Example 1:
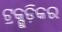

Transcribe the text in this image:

ଟ୍ରକ୍ଗୁଡ଼ିକର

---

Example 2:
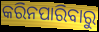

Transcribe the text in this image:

କରିନପାରିବାରୁ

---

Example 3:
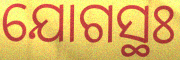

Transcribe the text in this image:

ଯୋଗସ୍ଥଃ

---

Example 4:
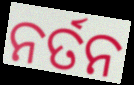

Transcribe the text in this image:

ନର୍ତନ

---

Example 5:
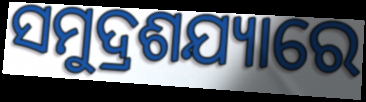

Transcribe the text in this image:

ସମୁଦ୍ରଶଯ୍ୟାରେ